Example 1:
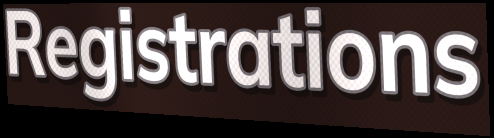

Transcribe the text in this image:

Registrations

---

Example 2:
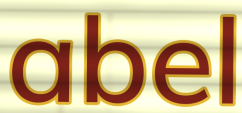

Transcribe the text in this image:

abel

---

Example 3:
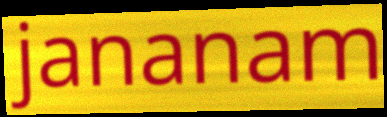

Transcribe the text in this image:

jananam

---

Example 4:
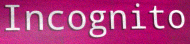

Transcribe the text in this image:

Incognito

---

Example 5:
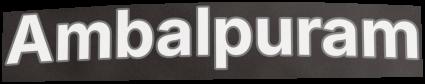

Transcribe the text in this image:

Ambalpuram